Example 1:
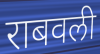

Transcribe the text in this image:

राबवली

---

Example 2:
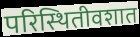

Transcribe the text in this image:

परिस्थितीवशात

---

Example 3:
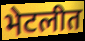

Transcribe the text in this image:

भेटलीत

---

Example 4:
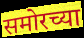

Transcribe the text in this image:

समोरच्या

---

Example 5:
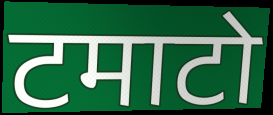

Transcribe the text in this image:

टमाटो